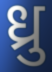
ध्रु